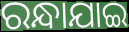
ରନ୍ଧାଯାଇ